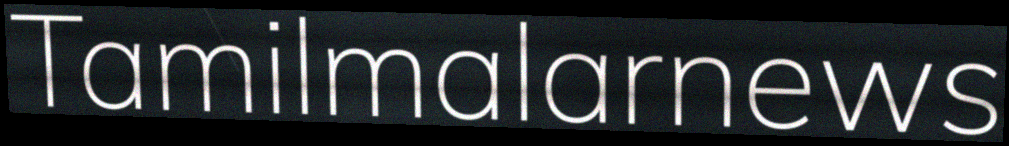
Tamilmalarnews